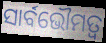
ସାର୍ବଭୌମତ୍ବ